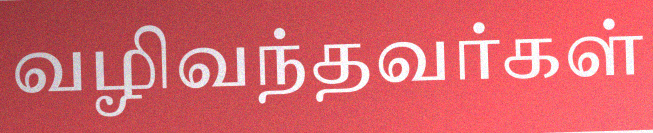
வழிவந்தவர்கள்